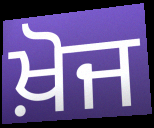
ਖ਼ੋਜ